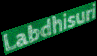
Labdhisuri